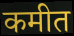
कमीत